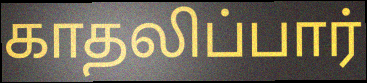
காதலிப்பார்